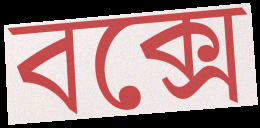
বক্সে